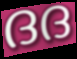
ദദ